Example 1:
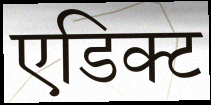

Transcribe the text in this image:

एडिक्ट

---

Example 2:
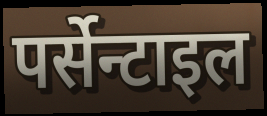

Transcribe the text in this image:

पर्सेन्टाइल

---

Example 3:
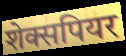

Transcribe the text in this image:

शेक्सपियर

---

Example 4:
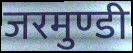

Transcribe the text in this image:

जरमुण्डी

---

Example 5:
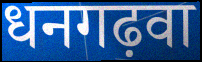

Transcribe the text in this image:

धनगढ़वा